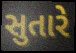
સુતારે